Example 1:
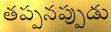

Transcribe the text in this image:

తప్పనప్పుడు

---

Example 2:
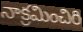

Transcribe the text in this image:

నాక్రమించిరి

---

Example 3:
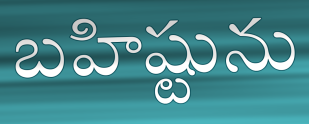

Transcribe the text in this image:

బహిష్టును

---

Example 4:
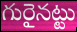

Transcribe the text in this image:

గురైనట్టు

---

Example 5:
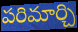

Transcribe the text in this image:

పరిమార్చి